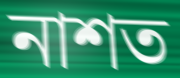
নাশত